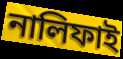
নালিফাই